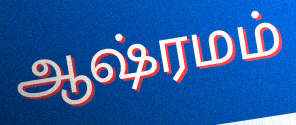
ஆஷ்ரமம்